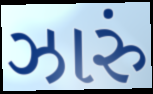
ઝારું